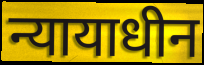
न्यायाधीन